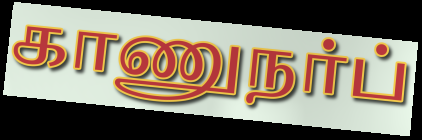
காணுநர்ப்